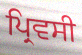
ਪ੍ਰਿਵਸੀ